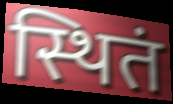
स्थितं